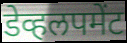
डेव्हलपमेंट